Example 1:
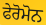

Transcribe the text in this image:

ਫੇਰੋਮੋਨ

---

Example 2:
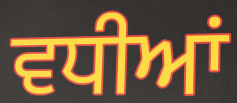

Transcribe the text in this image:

ਵਧੀਆਂ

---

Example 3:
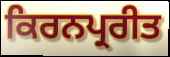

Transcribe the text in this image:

ਕਿਰਨਪ੍ਰਰੀਤ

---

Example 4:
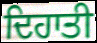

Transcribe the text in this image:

ਦਿਹਾਤੀ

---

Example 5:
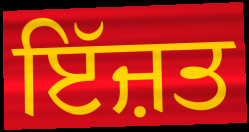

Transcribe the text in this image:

ਇੱਜ਼ਤ